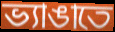
ভ্যাঙাতে